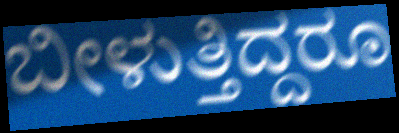
ಬೀಳುತ್ತಿದ್ದರೂ